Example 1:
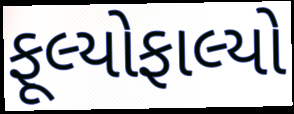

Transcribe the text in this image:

ફૂલ્યોફાલ્યો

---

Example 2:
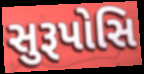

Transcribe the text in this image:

સુરૂપોસિ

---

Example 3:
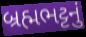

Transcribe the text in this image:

બ્રહ્મભટ્ટનું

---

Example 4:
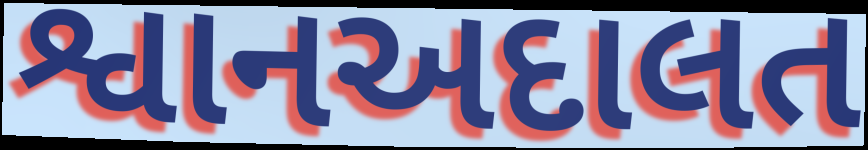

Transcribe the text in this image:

શ્વાનઅદાલત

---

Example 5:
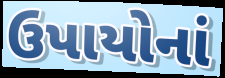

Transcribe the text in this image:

ઉપાયોનાં